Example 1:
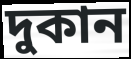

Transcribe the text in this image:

দুকান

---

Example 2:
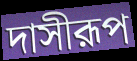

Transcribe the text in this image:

দাসীরূপ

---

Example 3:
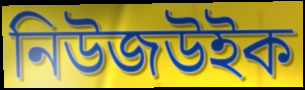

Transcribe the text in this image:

নিউজউইক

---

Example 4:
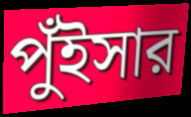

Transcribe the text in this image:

পুঁইসার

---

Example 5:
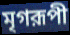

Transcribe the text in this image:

মৃগরূপী